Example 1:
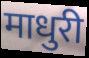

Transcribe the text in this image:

माधुरी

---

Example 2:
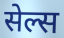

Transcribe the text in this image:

सेल्स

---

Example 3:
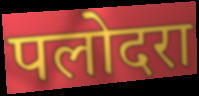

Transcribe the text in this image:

पलोदरा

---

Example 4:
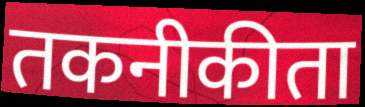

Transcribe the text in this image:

तकनीकीता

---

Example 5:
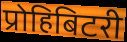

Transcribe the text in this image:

प्रोहिबिटरी